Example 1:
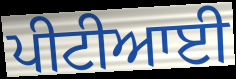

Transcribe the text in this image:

ਪੀਟੀਆਈ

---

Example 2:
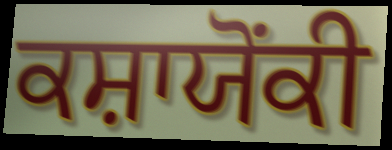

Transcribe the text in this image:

ਕਸ਼ਾਯੋਂਕੀ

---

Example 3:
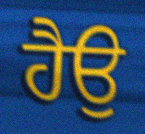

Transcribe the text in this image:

ਹੈਉ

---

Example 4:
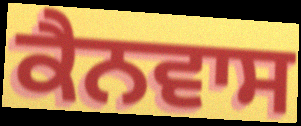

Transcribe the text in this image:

ਕੈਨਵਾਸ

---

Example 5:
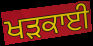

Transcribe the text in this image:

ਖੜਕਾਈ